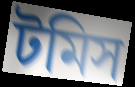
টমিস